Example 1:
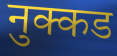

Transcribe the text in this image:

नुक्कड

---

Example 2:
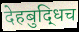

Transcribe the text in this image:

देहबुद्धिच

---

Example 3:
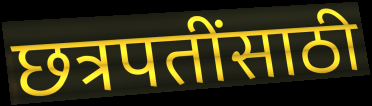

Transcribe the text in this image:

छत्रपतींसाठी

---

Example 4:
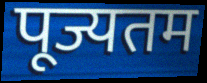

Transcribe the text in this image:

पूज्यतम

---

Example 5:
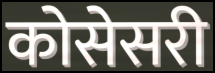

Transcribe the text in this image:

कोसेसरी